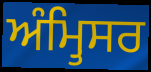
ਅੰਮ੍ਤਿਸਰ